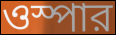
ওস্পার